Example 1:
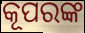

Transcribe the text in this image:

କୂପରଙ୍କ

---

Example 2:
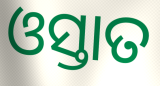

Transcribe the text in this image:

ଓସ୍ତାତ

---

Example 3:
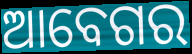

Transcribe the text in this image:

ଆବେଗର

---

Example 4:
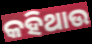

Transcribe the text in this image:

କହିଥାଉ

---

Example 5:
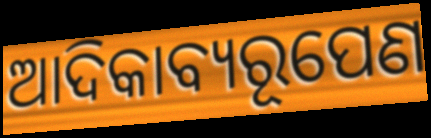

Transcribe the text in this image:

ଆଦିକାବ୍ୟରୂପେଣ